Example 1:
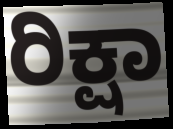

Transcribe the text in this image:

ರಿಕ್ಷಾ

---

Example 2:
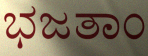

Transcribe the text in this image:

ಭಜತಾಂ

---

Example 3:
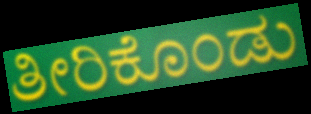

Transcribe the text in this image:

ತೀರಿಕೊಂಡು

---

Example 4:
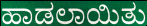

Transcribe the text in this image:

ಹಾಡಲಾಯಿತು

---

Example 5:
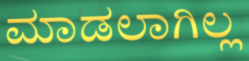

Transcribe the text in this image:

ಮಾಡಲಾಗಿಲ್ಲ